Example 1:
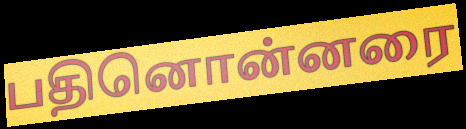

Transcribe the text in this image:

பதினொன்னரை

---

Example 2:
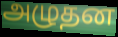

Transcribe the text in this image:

அழுதன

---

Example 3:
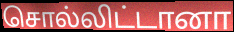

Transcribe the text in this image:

சொல்லிட்டானா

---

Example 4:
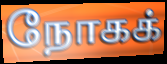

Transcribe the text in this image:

நோகக்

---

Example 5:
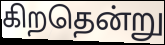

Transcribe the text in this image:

கிறதென்று